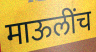
माऊलींच